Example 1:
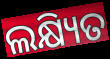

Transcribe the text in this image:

ଲକ୍ଷ୍ୟିତ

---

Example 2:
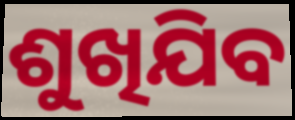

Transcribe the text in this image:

ଶୁଖିଯିବ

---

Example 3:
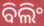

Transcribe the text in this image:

ବିଲିଂ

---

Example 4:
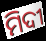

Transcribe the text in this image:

ମିଦୀ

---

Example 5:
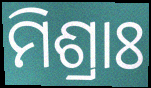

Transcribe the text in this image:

ମିଶ୍ରାଃ